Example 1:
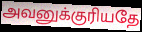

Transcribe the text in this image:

அவனுக்குரியதே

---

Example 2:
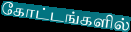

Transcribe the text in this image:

கோட்டங்களில்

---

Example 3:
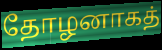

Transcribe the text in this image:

தோழனாகத்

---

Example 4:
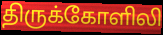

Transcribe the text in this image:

திருக்கோளிலி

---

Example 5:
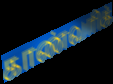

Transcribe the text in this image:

காண்வரிக்